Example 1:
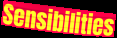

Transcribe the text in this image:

Sensibilities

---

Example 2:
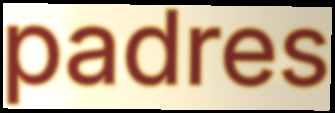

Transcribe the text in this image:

padres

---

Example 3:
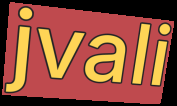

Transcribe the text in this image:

jvali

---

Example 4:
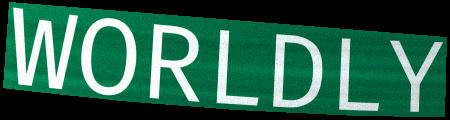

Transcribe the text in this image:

WORLDLY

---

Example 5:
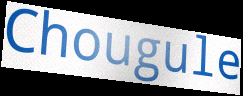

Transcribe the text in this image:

Chougule